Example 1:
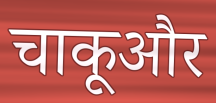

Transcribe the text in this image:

चाकूऔर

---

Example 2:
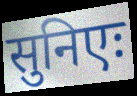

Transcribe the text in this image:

सुनिएः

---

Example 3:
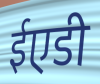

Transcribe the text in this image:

ईएडी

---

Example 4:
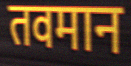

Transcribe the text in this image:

तवमान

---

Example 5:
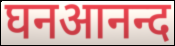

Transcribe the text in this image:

घनआनन्द